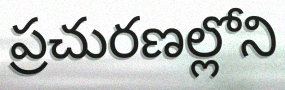
ప్రచురణల్లోని